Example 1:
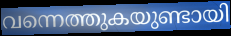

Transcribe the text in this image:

വന്നെത്തുകയുണ്ടായി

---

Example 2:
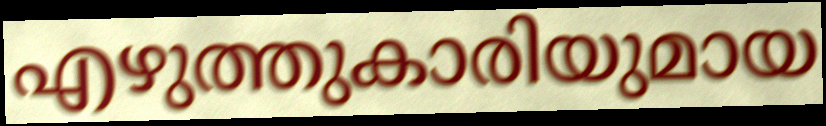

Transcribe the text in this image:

എഴുത്തുകാരിയുമായ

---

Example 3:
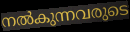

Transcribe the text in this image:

നൽകുന്നവരുടെ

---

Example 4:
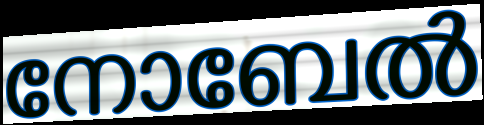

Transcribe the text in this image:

നോബേൽ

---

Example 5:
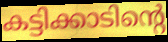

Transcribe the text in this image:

കട്ടിക്കാടിന്റെ